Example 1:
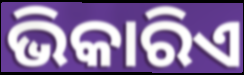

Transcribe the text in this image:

ଭିକାରିଏ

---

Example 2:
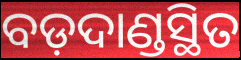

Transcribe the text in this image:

ବଡ଼ଦାଣ୍ଡସ୍ଥିତ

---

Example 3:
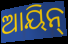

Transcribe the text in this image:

ଆୟିନ୍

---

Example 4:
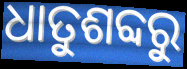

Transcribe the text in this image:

ଧାତୁଶବ୍ଦରୁ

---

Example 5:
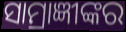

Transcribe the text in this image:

ସାମ୍ରାଜ୍ଞୀଙ୍କର